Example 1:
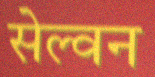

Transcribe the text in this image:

सेल्वन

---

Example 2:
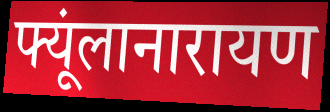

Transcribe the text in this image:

फ्यूंलानारायण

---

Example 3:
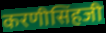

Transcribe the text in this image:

करणीसिंहजी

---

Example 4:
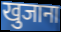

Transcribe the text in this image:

खुजाना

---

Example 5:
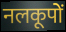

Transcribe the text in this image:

नलकूपों